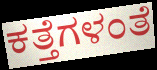
ಕತ್ತೆಗಳಂತೆ